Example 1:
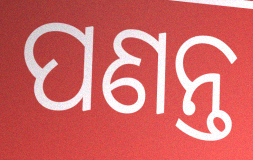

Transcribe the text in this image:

ପଣନ୍ତ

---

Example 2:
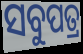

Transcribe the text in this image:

ସବୁପତ୍ର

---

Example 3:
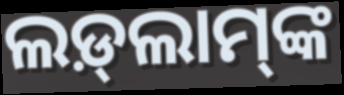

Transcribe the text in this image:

ଲଡ଼୍‍ଲାମ୍‍ଙ୍କ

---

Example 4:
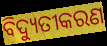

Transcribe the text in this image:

ବିଦ୍ୟୁତୀକରଣ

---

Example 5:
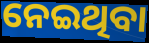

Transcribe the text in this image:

ନେଇଥିବା